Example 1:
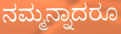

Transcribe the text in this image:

ನಮ್ಮನ್ನಾದರೂ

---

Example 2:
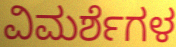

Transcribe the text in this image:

ವಿಮರ್ಶೆಗಳ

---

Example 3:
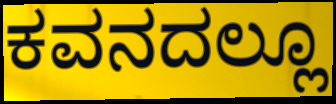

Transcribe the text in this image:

ಕವನದಲ್ಲೂ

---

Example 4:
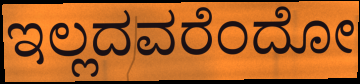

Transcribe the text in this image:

ಇಲ್ಲದವರೆಂದೋ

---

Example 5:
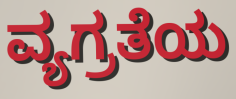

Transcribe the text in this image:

ವ್ಯಗ್ರತೆಯ